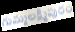
గుమ్మలక్ష్మీపురం